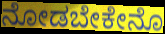
ನೋಡಬೇಕೇನೊ